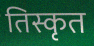
तिस्कृत